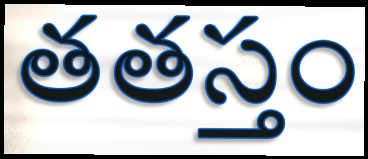
తతస్తం